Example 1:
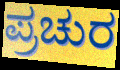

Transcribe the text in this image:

ಪ್ರಚುರ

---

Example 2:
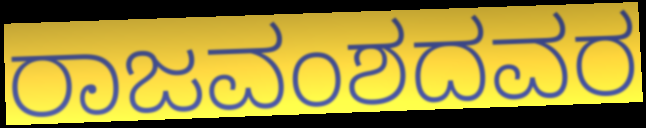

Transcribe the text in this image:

ರಾಜವಂಶದವರ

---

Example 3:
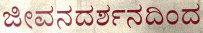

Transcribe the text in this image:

ಜೀವನದರ್ಶನದಿಂದ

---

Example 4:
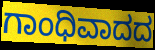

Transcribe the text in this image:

ಗಾಂಧಿವಾದದ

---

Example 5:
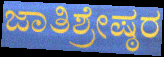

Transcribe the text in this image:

ಜಾತಿಶ್ರೇಷ್ಠರ